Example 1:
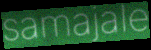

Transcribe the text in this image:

samajale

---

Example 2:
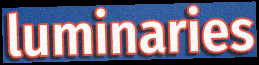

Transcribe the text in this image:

luminaries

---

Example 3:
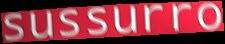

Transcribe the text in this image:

sussurro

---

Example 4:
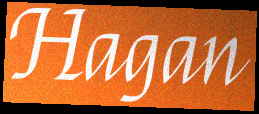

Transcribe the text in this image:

Hagan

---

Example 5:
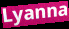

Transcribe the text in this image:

Lyanna